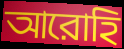
আরোহি